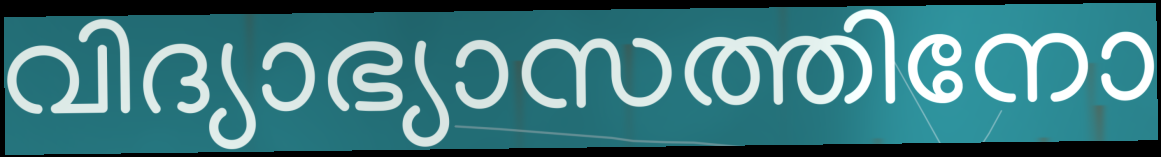
വിദ്യാഭ്യാസത്തിനോ